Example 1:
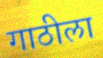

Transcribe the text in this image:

गाठीला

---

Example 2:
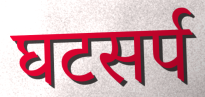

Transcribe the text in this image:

घटसर्प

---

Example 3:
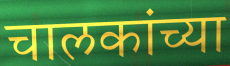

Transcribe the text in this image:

चालकांच्या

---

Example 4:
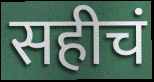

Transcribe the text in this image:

सहीचं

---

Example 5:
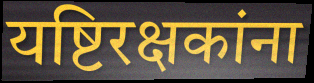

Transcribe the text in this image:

यष्टिरक्षकांना